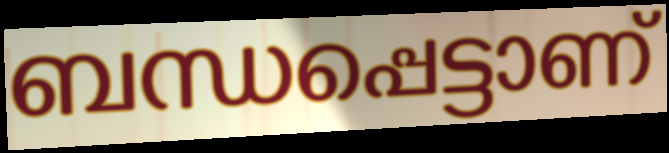
ബന്ധപ്പെട്ടാണ്